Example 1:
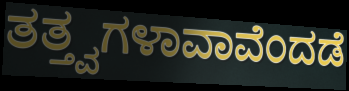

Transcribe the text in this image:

ತತ್ತ್ವಗಳಾವಾವೆಂದಡೆ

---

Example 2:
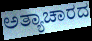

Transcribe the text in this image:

ಅತ್ಯಾಚಾರದ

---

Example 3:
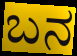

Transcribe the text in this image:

ಬನ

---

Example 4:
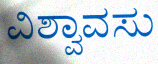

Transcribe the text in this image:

ವಿಶ್ವಾವಸು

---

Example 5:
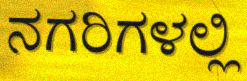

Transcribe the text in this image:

ನಗರಿಗಳಲ್ಲಿ